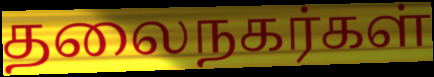
தலைநகர்கள்